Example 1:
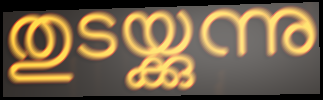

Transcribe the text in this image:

തുടയ്ക്കുന്നു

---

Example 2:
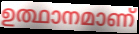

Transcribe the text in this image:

ഉത്ഥാനമാണ്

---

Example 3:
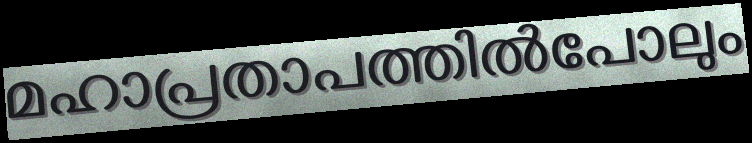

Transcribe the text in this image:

മഹാപ്രതാപത്തിൽപോലും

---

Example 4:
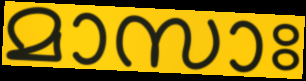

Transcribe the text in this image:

മാസാഃ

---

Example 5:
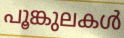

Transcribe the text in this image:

പൂങ്കുലകൾ